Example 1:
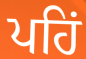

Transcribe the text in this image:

ਪਹਿਂ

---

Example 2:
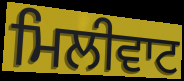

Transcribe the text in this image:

ਮਿਲੀਵਾਟ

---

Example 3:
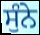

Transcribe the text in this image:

ਸੁੰਨੇ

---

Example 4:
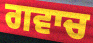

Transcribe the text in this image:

ਗਵਾਚ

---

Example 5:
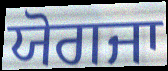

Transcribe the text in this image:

ਯੋਗਜਾ